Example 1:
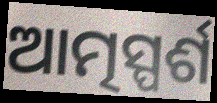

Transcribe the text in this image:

ଆତ୍ମସ୍ପର୍ଶ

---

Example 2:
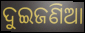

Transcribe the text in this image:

ଦୁଇଜଣିଆ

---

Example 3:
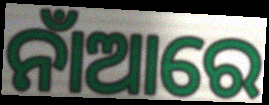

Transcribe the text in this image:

ନାଁଆରେ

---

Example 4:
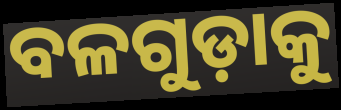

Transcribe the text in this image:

ବଳଗୁଡ଼ାକୁ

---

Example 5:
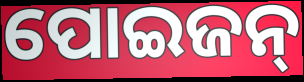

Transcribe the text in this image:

ପୋଇଜନ୍